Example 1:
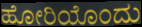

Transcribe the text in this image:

ಹೋರಿಯೊಂದು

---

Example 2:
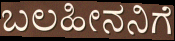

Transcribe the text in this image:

ಬಲಹೀನನಿಗೆ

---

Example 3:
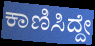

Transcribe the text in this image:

ಕಾಣಿಸಿದ್ದೇ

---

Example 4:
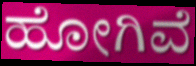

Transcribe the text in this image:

ಹೋಗಿವೆ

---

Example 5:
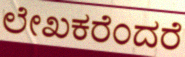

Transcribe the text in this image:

ಲೇಖಕರೆಂದರೆ